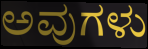
ಅವುಗಳು